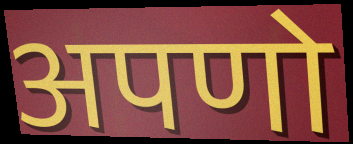
अपणो